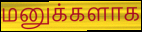
மனுக்களாக